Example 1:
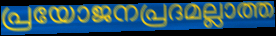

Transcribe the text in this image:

പ്രയോജനപ്രദമല്ലാത്ത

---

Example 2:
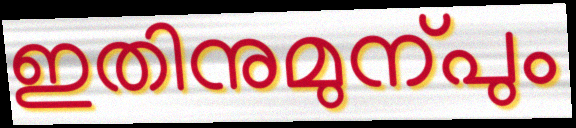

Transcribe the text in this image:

ഇതിനുമുന്പും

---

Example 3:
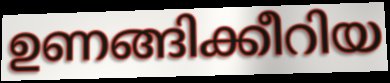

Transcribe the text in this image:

ഉണങ്ങിക്കീറിയ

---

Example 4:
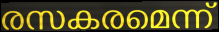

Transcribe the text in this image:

രസകരമെന്ന്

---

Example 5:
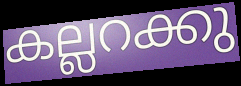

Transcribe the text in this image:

കല്ലറക്കു